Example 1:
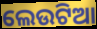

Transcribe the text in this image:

ଲେଉଟିଆ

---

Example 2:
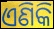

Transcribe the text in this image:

ଏଣିକି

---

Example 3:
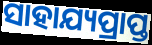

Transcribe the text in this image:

ସାହାଯ୍ୟପ୍ରାପ୍ତ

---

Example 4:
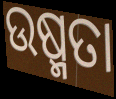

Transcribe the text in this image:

ଉଷ୍ମତା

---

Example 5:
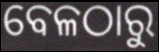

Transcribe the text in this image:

ବେଳଠାରୁ